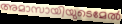
അമാസായിയുടെമേൽ